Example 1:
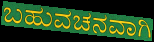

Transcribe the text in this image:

ಬಹುವಚನವಾಗಿ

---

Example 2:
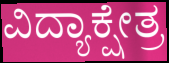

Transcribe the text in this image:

ವಿದ್ಯಾಕ್ಷೇತ್ರ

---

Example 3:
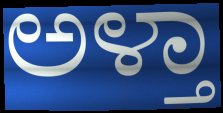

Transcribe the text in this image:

ಅಳ್ತಾ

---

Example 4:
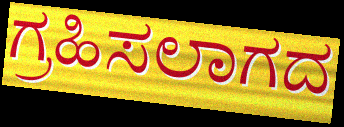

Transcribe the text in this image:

ಗ್ರಹಿಸಲಾಗದ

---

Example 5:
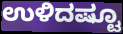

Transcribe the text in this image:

ಉಳಿದಷ್ಟೂ